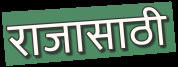
राजासाठी